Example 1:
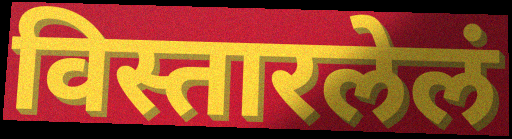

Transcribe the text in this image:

विस्तारलेलं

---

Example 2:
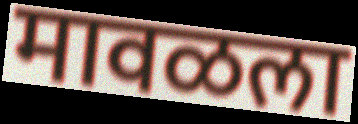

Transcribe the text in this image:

मावळला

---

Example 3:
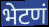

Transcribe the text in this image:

भेटणं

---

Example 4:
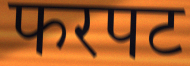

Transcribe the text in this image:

फरपट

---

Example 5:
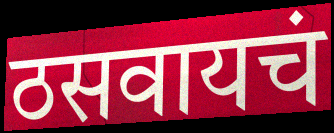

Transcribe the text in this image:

ठसवायचं